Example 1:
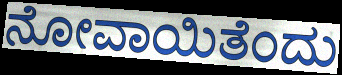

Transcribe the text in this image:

ನೋವಾಯಿತೆಂದು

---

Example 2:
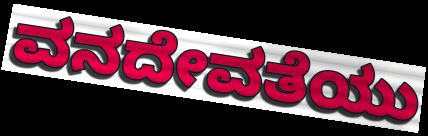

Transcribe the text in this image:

ವನದೇವತೆಯು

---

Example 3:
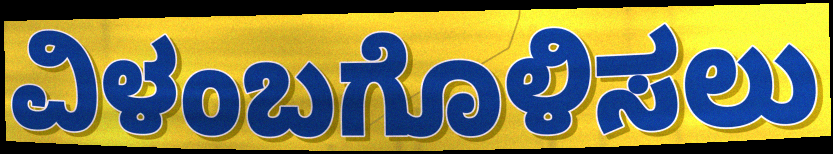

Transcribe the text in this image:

ವಿಳಂಬಗೊಳಿಸಲು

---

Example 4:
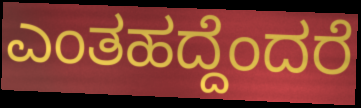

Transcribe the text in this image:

ಎಂತಹದ್ದೆಂದರೆ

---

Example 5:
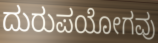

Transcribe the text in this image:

ದುರುಪಯೋಗವು